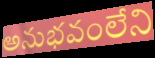
అనుభవంలేని